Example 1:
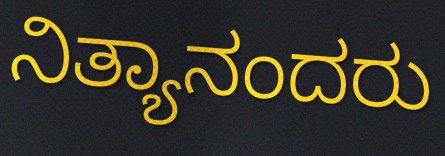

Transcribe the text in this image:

ನಿತ್ಯಾನಂದರು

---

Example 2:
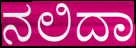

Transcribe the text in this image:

ನಲಿದಾ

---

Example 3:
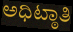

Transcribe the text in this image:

ಅಧಿಟ್ಠಾತಿ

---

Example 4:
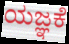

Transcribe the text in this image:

ಯಜ್ಞಕೆ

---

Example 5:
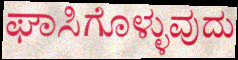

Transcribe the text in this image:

ಘಾಸಿಗೊಳ್ಳುವುದು